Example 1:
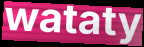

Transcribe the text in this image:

wataty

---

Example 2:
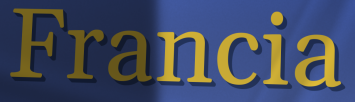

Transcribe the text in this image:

Francia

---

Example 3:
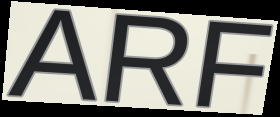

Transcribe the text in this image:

ARF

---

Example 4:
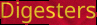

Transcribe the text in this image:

Digesters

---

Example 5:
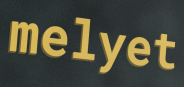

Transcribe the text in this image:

melyet